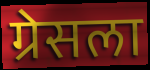
ग्रेसला